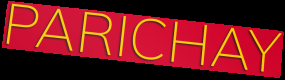
PARICHAY